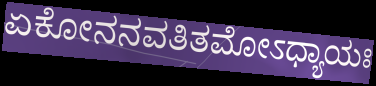
ಏಕೋನನವತಿತಮೋಽಧ್ಯಾಯಃ